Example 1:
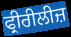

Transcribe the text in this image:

ਫ੍ਰੀਰੀਲੀਜ਼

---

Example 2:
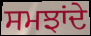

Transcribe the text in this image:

ਸਮਝਾਂਦੇ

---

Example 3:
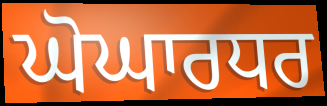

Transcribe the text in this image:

ਘੋਘਾਰਧਰ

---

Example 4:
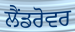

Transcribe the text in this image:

ਲੈਂਡਰੋਵਰ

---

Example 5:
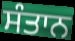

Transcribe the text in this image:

ਸੰਤਾਨ